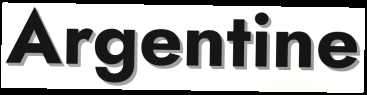
Argentine